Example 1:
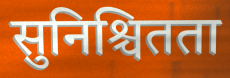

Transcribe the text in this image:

सुनिश्चितता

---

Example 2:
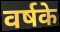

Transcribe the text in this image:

वर्षके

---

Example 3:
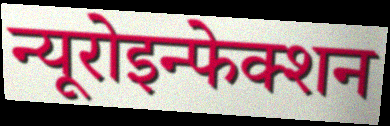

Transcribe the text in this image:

न्यूरोइन्फेक्शन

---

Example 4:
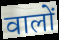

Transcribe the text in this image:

वालों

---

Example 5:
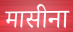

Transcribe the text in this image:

मासीना